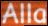
Alla